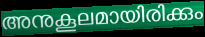
അനുകൂലമായിരിക്കും